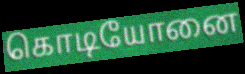
கொடியோனை